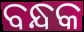
ବନ୍ଧକ